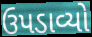
ઉપડાવ્યો